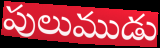
పులుముడు